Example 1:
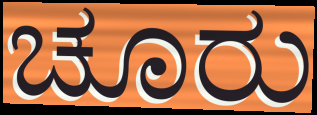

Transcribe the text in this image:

ಚೂರು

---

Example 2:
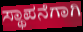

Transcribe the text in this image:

ಸ್ಥಾಪನೆಗಾಗಿ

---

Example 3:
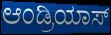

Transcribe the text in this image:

ಆಂಡ್ರಿಯಾಸ್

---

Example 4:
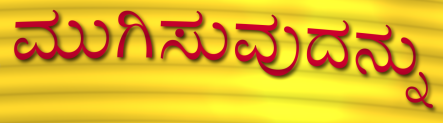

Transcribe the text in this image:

ಮುಗಿಸುವುದನ್ನು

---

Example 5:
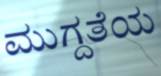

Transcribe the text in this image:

ಮುಗ್ದತೆಯ